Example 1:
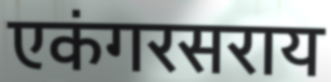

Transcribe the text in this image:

एकंगरसराय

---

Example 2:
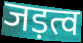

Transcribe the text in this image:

जड़त्व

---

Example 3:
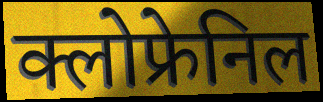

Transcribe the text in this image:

क्लोफ्रेनिल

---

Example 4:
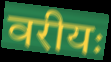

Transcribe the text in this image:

वरीयः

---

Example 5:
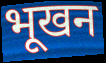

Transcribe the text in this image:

भूखन